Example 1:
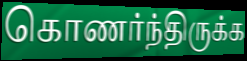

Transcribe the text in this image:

கொணர்ந்திருக்க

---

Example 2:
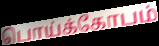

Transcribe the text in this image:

பொய்க்கோபம்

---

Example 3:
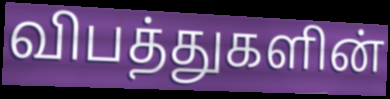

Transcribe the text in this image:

விபத்துகளின்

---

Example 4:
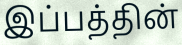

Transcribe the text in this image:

இப்பத்தின்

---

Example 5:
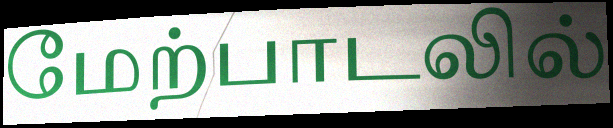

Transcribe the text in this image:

மேற்பாடலில்